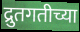
द्रुतगतीच्या